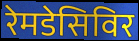
रेमडेसिविर